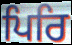
ਪਿਰਿ